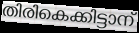
തിരികെക്കിട്ടാന്